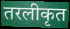
तरलीकृत